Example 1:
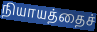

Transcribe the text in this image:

நியாயத்தைச்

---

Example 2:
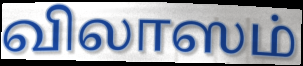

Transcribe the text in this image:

விலாஸம்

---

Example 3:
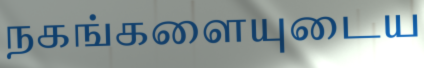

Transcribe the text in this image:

நகங்களையுடைய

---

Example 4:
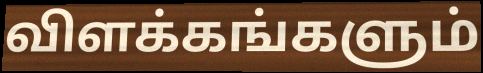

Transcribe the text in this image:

விளக்கங்களும்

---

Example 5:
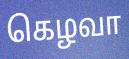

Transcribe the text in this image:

கெழவா